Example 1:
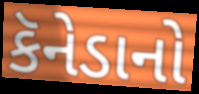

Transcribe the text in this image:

કૅનેડાનો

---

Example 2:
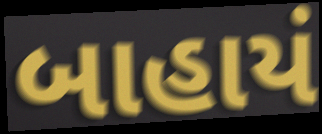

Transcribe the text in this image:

બાહાયં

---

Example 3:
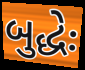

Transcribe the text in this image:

બુદ્ધેઃ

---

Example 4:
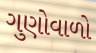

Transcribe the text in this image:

ગુણોવાળો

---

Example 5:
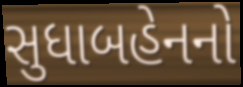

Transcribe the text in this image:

સુધાબહેનનો